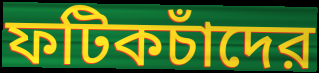
ফটিকচাঁদের